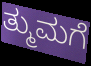
ತ್ಮುಮಗೆ